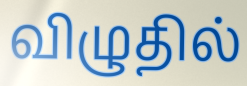
விழுதில்